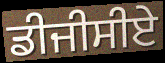
ਡੀਜੀਸੀਏ